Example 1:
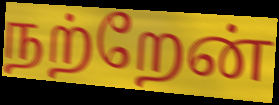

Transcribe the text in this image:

நற்றேன்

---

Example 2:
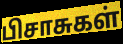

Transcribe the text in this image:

பிசாசுகள்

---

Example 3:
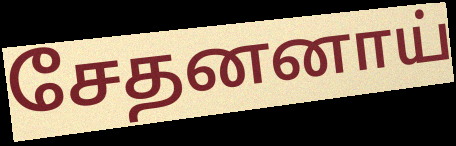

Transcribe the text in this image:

சேதனனாய்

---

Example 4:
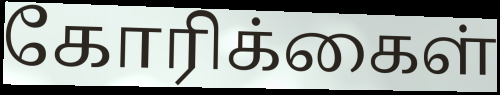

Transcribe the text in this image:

கோரிக்கைள்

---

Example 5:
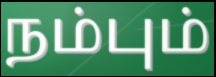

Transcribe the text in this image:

நம்பும்